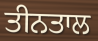
ਤੀਨਤਾਲ